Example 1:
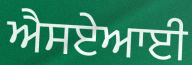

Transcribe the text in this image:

ਐਸਏਆਈ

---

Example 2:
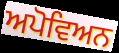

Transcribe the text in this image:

ਅਪੋਵਿਅਨ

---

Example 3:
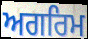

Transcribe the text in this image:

ਅਗਰਿਮ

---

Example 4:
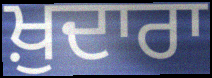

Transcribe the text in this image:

ਖ਼ੁਦਾਰਾ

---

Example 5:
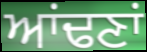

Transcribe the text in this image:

ਆਂਢਣਾਂ